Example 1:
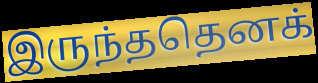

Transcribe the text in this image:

இருந்ததெனக்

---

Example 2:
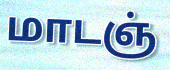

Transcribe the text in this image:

மாடஞ்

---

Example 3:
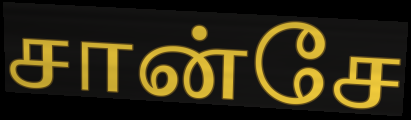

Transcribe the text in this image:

சான்சே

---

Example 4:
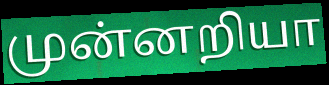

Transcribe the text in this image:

முன்னறியா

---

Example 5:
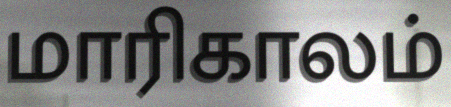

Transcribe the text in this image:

மாரிகாலம்